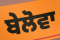
ਬੇਲੋਵਾ